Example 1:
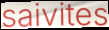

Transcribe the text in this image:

saivites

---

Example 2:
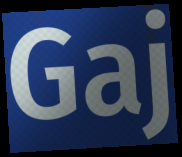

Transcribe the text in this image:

Gaj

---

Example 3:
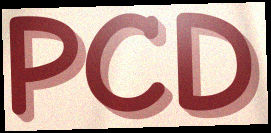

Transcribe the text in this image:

PCD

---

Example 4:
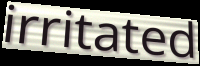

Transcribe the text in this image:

irritated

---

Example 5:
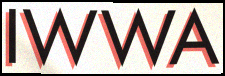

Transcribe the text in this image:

IWWA